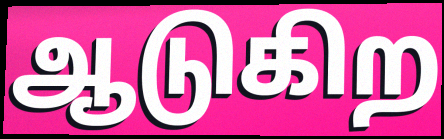
ஆடுகிற